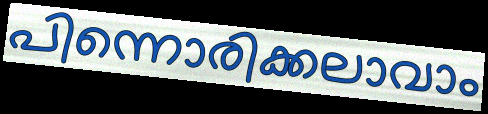
പിന്നൊരിക്കലാവാം